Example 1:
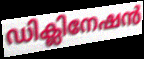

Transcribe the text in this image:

ഡിക്ലിനേഷൻ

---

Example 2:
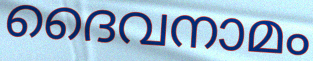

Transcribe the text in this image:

ദൈവനാമം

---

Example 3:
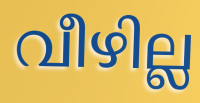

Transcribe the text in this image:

വീഴില്ല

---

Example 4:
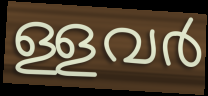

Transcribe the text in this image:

ള്ളവർ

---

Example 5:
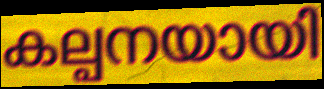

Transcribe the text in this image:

കല്പനയായി